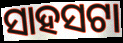
ସାହସଟା